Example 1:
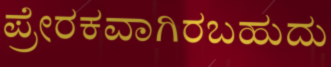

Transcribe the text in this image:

ಪ್ರೇರಕವಾಗಿರಬಹುದು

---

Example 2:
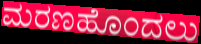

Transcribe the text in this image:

ಮರಣಹೊಂದಲು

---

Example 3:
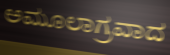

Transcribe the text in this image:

ಅಮೂಲಾಗ್ರವಾದ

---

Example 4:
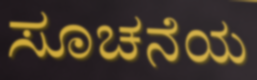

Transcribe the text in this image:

ಸೂಚನೆಯ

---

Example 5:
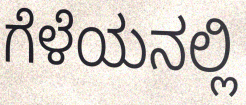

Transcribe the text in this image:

ಗೆಳೆಯನಲ್ಲಿ